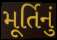
મૂર્તિનું